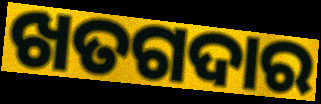
ଖତଗଦାର